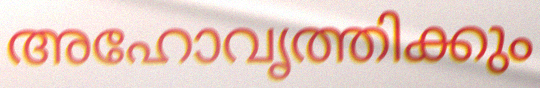
അഹോവൃത്തിക്കും